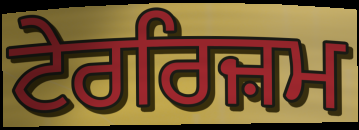
ਟੇਰਰਿਜ਼ਮ